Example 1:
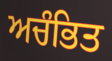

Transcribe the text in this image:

ਅਚੰਭਿਤ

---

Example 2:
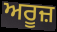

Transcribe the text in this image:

ਅਰੂਜ਼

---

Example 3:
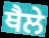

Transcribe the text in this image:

ਥੈਲੇ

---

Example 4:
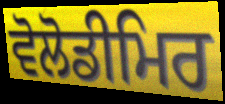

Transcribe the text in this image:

ਵੋਲੋਡੀਮਿਰ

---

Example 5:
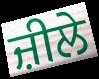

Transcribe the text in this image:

ਜ਼ੀਲੇ